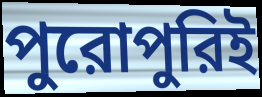
পুরোপুরিই